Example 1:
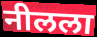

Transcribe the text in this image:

नीलला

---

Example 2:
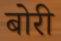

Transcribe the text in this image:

बोरी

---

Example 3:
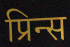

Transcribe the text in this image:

प्रिन्स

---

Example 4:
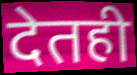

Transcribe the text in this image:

देतही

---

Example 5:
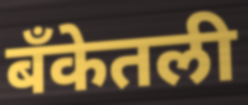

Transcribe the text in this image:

बँकेतली